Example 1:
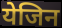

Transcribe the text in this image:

येजिन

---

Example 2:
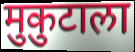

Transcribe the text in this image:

मुकुटाला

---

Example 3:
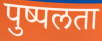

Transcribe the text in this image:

पुष्पलता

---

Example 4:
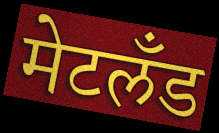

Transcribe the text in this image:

मेटलँड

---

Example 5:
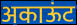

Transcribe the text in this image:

अकाऊंट